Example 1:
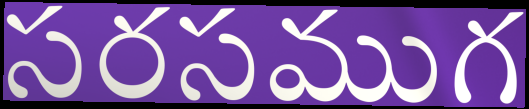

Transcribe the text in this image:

సరసముగ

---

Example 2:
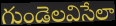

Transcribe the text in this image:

గుండెలవిసేలా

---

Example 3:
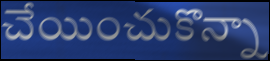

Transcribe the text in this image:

చేయించుకొన్నా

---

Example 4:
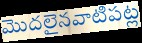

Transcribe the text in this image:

మొదలైనవాటిపట్ల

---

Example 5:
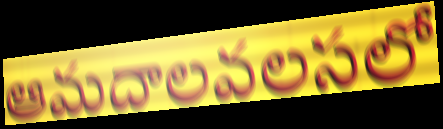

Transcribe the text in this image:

ఆమదాలవలసలో